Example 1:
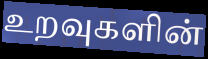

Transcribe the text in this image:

உறவுகளின்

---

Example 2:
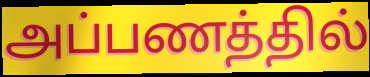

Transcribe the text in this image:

அப்பணத்தில்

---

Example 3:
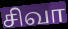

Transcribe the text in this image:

சிவா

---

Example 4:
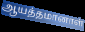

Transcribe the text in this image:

ஆயத்தமானாள்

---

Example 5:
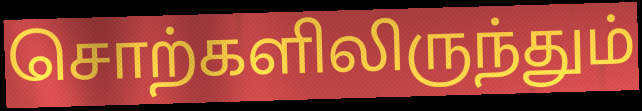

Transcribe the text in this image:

சொற்களிலிருந்தும்